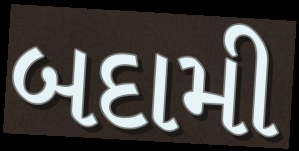
બદામી